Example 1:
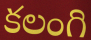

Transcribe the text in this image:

కలంగి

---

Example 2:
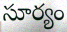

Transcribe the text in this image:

సూర్యం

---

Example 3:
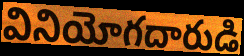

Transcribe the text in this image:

వినియోగదారుడి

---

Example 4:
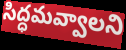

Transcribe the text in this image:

సిద్ధమవ్వాలని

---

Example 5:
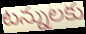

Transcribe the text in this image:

టన్నులకు